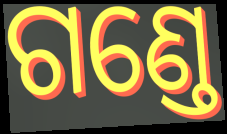
ଗଣ୍ଡେ